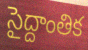
సైద్దాంతిక